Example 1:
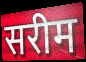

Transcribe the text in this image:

सरीम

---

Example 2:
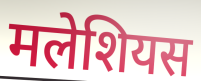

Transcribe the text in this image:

मलेशियस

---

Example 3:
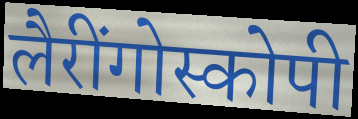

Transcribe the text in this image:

लैरींगोस्कोपी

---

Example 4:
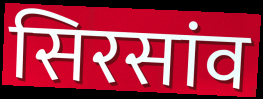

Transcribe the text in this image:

सिरसांव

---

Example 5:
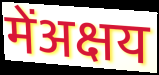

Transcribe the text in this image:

मेंअक्षय